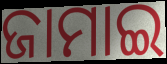
ଜାମାଇ